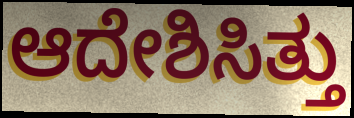
ಆದೇಶಿಸಿತ್ತು